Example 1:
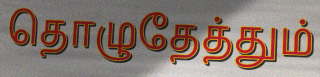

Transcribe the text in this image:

தொழுதேத்தும்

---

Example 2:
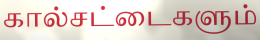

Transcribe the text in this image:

கால்சட்டைகளும்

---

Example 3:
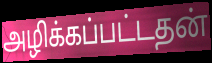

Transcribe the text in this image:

அழிக்கப்பட்டதன்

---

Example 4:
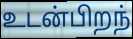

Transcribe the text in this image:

உடன்பிறந்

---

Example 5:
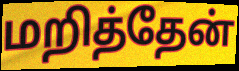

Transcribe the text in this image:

மறித்தேன்